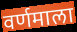
वर्णमाला